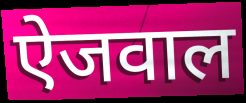
ऐजवाल